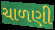
ચાળણી